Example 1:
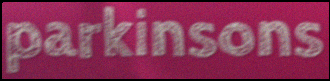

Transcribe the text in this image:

parkinsons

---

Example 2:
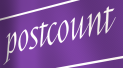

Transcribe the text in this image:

postcount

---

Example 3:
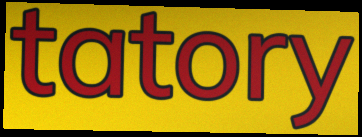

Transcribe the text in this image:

tatory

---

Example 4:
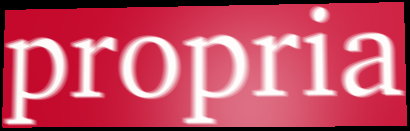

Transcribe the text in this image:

propria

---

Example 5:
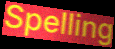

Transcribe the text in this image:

Spelling